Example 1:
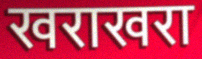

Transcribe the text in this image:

खराखरा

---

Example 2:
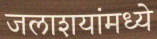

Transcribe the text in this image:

जलाशयांमध्ये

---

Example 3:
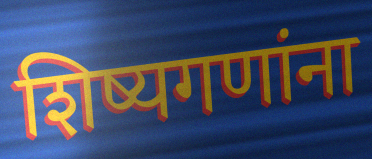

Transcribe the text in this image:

शिष्यगणांना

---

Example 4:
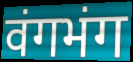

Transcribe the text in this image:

वंगभंग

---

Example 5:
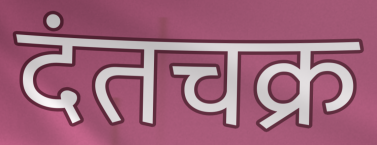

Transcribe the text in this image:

दंतचक्र